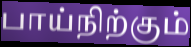
பாய்நிற்கும்